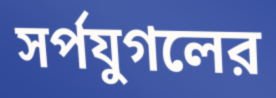
সর্পযুগলের